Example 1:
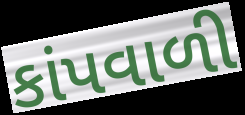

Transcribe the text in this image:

કાંપવાળી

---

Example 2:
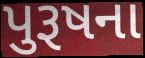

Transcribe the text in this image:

પુરૂષના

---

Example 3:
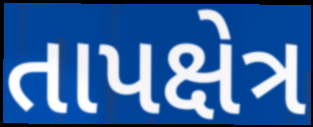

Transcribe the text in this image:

તાપક્ષેત્ર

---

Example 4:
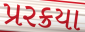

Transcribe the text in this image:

પ્રરક્રયા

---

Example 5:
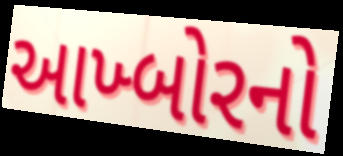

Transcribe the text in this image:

આખ્બોરનો